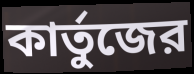
কার্তুজের